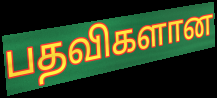
பதவிகளான